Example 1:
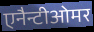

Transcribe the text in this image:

एनैन्टीओमर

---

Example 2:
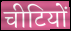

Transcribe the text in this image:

चीटियों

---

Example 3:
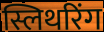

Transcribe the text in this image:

स्लिथरिंग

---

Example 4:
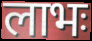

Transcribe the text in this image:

लाभः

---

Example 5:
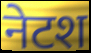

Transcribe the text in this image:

नेटश